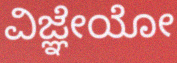
ವಿಜ್ಞೇಯೋ